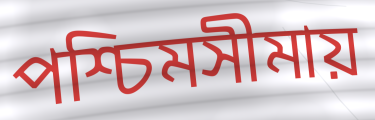
পশ্চিমসীমায়